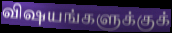
விஷயங்களுக்குக்